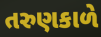
તરુણકાળે